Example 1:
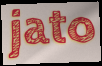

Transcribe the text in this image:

jato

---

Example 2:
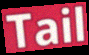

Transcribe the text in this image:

Tail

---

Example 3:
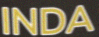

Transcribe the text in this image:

INDA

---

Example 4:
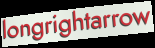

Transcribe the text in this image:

longrightarrow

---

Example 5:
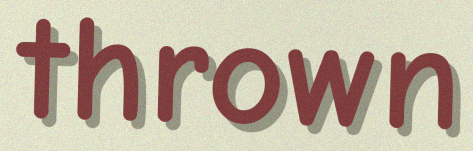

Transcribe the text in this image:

thrown